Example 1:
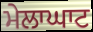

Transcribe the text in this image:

ਮੇਲਾਘਾਟ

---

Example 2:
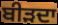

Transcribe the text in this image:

ਬੀੜਦਾ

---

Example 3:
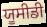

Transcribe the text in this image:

ਯੂਸੀਡੀ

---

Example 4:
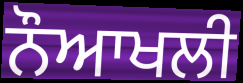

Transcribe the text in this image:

ਨੌਆਖਲੀ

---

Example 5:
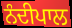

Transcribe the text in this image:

ਨੰਦੀਪਾਲ